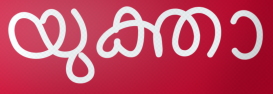
യുക്താ